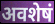
अवशेषं